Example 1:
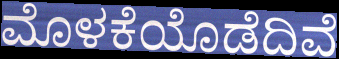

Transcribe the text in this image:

ಮೊಳಕೆಯೊಡೆದಿವೆ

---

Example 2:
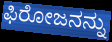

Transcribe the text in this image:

ಫಿರೋಜನನ್ನು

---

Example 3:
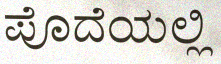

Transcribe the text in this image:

ಪೊದೆಯಲ್ಲಿ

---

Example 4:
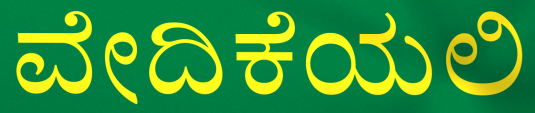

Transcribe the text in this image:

ವೇದಿಕೆಯಲಿ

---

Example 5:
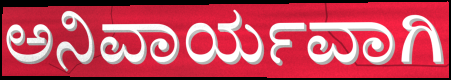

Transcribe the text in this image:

ಅನಿವಾರ್ಯವಾಗಿ